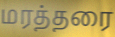
மரத்தரை